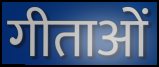
गीताओं